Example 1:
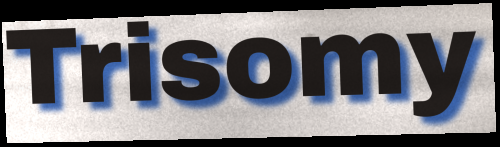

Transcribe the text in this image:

Trisomy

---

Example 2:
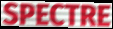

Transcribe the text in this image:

SPECTRE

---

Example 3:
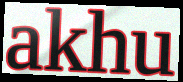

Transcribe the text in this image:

akhu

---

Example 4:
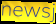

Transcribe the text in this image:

newsj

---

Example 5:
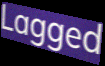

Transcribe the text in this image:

Lagged